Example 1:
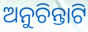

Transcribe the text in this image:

ଅନୁଚିନ୍ତାଟି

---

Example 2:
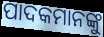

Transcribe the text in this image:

ପାଦକମାନଙ୍କୁ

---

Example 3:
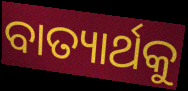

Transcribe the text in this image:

ବାତ୍ୟାର୍ଥକୁ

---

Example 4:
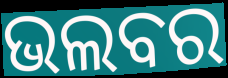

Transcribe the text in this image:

ଭଲବର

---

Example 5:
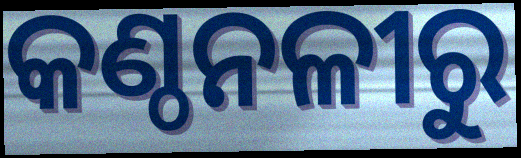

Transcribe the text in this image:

କଣ୍ଠନଳୀରୁ